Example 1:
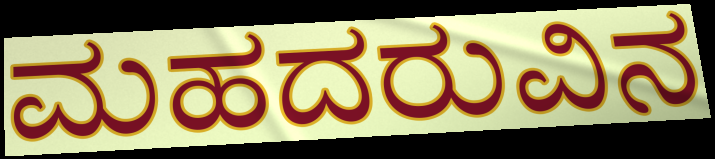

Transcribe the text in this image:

ಮಹದರುವಿನ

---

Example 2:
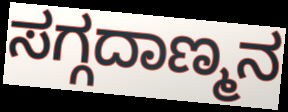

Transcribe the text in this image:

ಸಗ್ಗದಾಣ್ಮನ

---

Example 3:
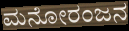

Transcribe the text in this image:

ಮನೋರಂಜನ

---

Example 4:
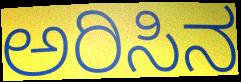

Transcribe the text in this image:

ಅರಿಸಿನ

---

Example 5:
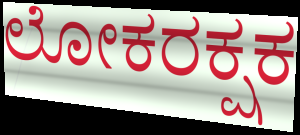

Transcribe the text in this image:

ಲೋಕರಕ್ಷಕ